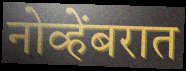
नोव्हेंबरात